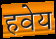
हवेय